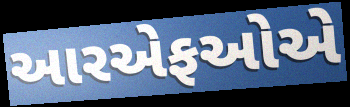
આરએફઓએ